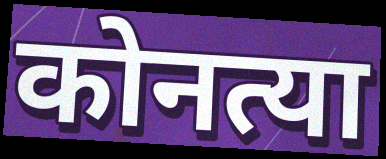
कोनत्या